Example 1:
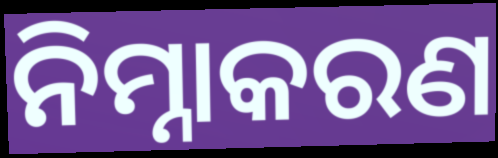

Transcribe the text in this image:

ନିମ୍ନାକରଣ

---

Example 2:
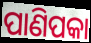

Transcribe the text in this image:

ପାଣିପକା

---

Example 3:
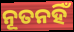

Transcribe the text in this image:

ନୂତନହିଁ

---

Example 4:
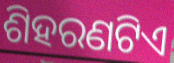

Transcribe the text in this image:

ଶିହରଣଟିଏ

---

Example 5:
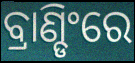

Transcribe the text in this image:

ବ୍ରାଣ୍ଡିଂରେ